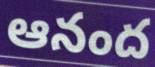
ఆనంద